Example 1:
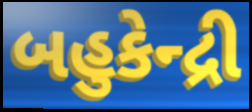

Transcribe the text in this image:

બહુકેન્દ્રી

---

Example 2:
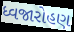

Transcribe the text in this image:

ધ્વજારોહણ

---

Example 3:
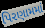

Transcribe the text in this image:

પિરણામમાં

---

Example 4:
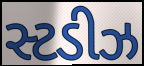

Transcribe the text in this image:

સ્ટડીઝ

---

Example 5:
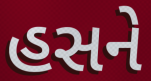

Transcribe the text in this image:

હસને